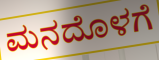
ಮನದೊಳಗೆ